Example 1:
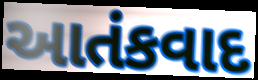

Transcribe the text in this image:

આતંકવાદ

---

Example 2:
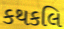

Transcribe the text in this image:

કથકલિ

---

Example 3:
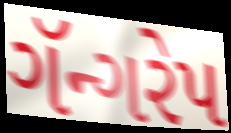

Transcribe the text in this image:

ગૅન્ગરેપ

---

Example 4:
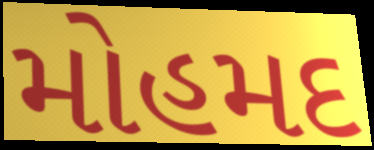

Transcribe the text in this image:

મોહમદ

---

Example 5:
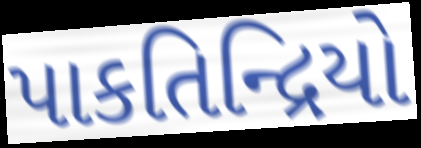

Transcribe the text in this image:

પાકતિન્દ્રિયો